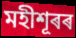
মহীশূৰৰ